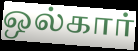
ஒல்கார்